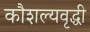
कौशल्यवृद्धी